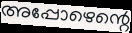
അപ്പോഴെന്റെ